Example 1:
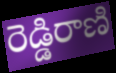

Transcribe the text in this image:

రెడ్డిరాణి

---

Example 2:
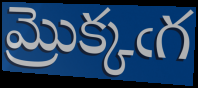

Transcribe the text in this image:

మ్రొక్కఁగ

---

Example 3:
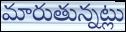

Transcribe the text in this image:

మారుతున్నట్లు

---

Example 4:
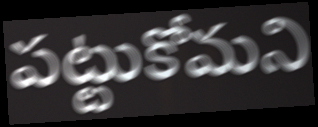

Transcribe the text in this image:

పట్టుకోమని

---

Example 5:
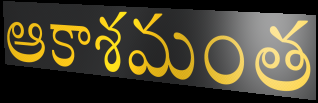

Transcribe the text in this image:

ఆకాశమంత